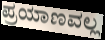
ಪ್ರಯಾಣವಲ್ಲ